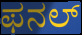
ಫನಲ್